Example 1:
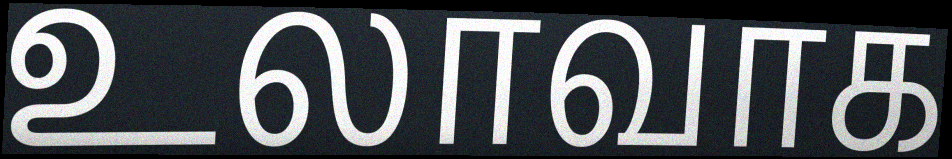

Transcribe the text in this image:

உலாவாக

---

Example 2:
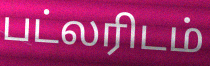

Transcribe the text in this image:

பட்லரிடம்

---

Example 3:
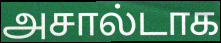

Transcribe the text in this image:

அசால்டாக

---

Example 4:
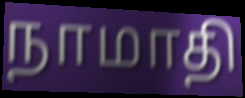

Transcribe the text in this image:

நாமாதி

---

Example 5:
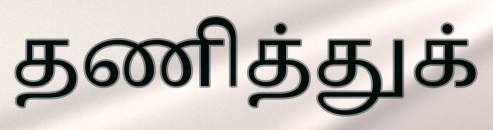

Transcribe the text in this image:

தணித்துக்